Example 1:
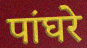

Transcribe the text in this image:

पांघरे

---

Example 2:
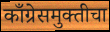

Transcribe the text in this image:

काँग्रेसमुक्तीचा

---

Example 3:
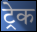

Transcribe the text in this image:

ट्रेक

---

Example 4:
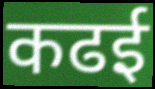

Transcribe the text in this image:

कढई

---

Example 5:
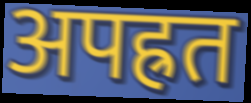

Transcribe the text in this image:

अपह्रत